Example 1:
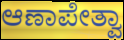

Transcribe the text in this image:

ಆಣಾಪೇತ್ವಾ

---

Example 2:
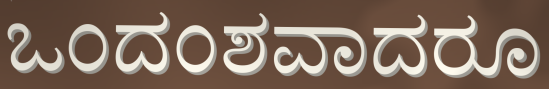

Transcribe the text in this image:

ಒಂದಂಶವಾದರೂ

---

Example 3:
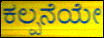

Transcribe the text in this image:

ಕಲ್ಪನೆಯೇ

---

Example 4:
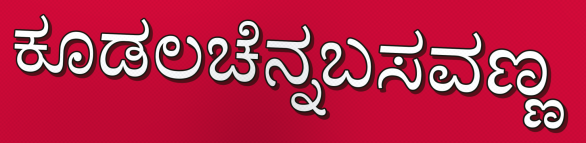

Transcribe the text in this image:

ಕೂಡಲಚೆನ್ನಬಸವಣ್ಣ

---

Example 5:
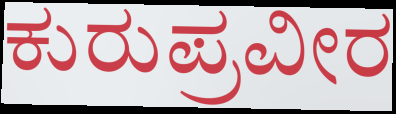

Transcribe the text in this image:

ಕುರುಪ್ರವೀರ